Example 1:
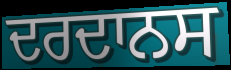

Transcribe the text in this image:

ਦਰਦਾਨਸ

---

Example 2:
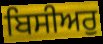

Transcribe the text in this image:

ਬਿਸੀਅਰੁ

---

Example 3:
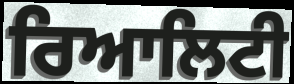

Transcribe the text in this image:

ਰਿਆਲਿਟੀ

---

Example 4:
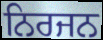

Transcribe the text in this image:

ਨਿਰਜਨ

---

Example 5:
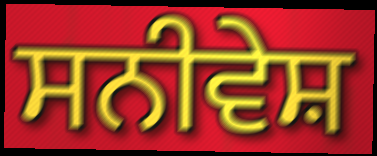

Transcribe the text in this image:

ਸਨੀਵੇਸ਼